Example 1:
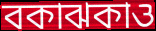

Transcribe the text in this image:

বকাঝকাও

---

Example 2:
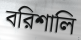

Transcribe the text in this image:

বরিশালি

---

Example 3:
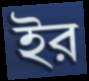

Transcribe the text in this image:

ইর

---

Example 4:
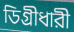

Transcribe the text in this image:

ডিগ্রীধারী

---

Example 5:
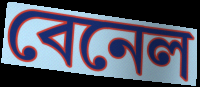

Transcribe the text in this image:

বেনেল